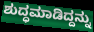
ಶುದ್ಧಮಾಡಿದ್ದನ್ನು